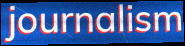
journalism